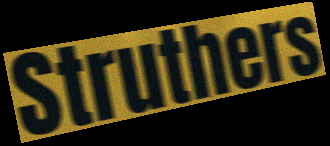
Struthers